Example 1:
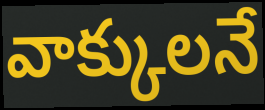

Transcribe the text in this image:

వాక్కులనే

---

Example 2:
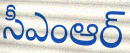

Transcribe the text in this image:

సీఎంఆర్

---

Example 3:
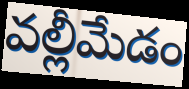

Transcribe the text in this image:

వల్లీమేడం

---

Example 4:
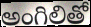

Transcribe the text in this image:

అంగిలితో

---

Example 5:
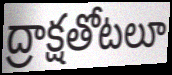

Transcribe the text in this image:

ద్రాక్షతోటలూ